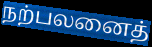
நற்பலனைத்